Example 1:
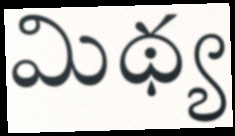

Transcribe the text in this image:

మిథ్య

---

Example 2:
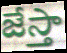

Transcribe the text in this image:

జేస్తా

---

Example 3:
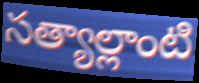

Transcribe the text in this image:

సత్యాల్లాంటి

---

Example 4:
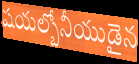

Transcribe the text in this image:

షయల్బోనీయుడైన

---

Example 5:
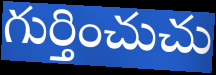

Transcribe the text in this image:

గుర్తించుచు